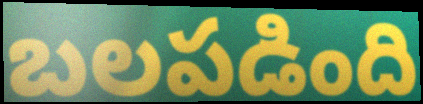
బలపడింది